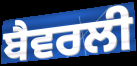
ਬੈਵਰਲੀ